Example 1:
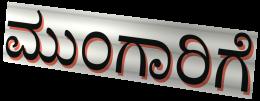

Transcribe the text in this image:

ಮುಂಗಾರಿಗೆ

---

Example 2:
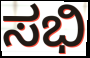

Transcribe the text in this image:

ಸಭಿ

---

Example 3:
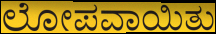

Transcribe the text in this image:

ಲೋಪವಾಯಿತು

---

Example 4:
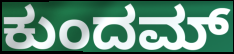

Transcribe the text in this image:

ಕುಂದಮ್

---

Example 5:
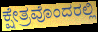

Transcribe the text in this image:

ಕ್ಷೇತ್ರವೊಂದರಲ್ಲಿ